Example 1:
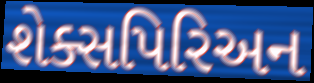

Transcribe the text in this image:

શેક્સપિરિઅન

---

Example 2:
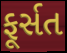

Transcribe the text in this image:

ફૂર્સત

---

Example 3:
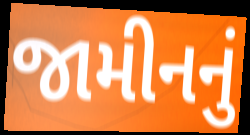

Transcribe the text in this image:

જામીનનું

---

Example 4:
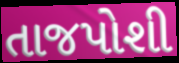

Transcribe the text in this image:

તાજપોશી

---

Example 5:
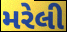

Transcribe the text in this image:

મરેલી